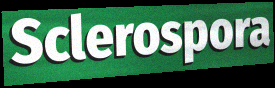
Sclerospora